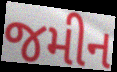
જમીન